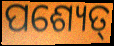
ପଶ୍ୟେତ୍